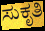
ಸುಕೃತಿ